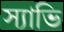
স্যাভি